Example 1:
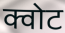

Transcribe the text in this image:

क्वोट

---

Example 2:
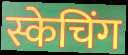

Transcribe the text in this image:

स्केचिंग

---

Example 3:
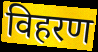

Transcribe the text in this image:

विहरण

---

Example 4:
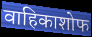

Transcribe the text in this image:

वाहिकाशोफ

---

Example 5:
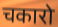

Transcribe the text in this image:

चकारो